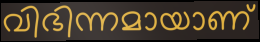
വിഭിന്നമായാണ്